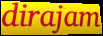
dirajam